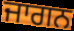
ਜਾਗਨ